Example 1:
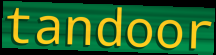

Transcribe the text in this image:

tandoor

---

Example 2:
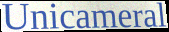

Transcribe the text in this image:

Unicameral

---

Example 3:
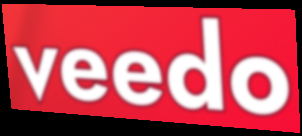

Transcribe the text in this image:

veedo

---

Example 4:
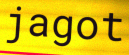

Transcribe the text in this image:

jagot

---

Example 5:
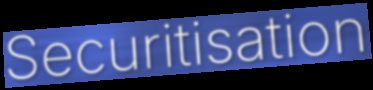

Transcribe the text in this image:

Securitisation